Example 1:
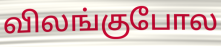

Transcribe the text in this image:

விலங்குபோல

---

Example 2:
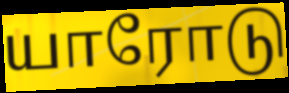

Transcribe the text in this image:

யாரோடு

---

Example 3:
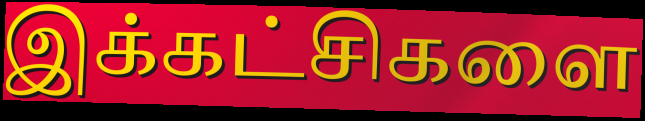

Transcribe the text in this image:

இக்கட்சிகளை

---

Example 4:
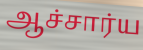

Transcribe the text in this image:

ஆச்சார்ய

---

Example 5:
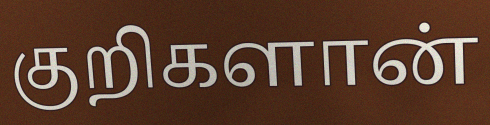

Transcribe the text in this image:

குறிகளான்